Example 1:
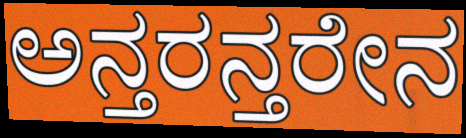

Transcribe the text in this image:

ಅನ್ತರನ್ತರೇನ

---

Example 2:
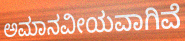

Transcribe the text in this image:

ಅಮಾನವೀಯವಾಗಿವೆ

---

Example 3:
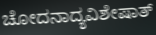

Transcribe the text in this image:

ಚೋದನಾದ್ಯವಿಶೇಷಾತ್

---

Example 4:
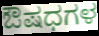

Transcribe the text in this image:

ಔಷಧಗಳ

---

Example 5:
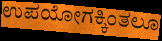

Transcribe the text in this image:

ಉಪಯೋಗಕ್ಕಿಂತಲೂ